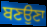
ਬਣਉਣਾ